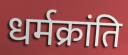
धर्मक्रांति